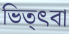
ভিত্ৎবা